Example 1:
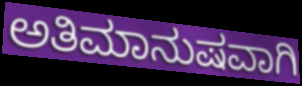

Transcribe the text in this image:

ಅತಿಮಾನುಷವಾಗಿ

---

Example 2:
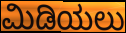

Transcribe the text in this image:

ಮಿಡಿಯಲು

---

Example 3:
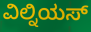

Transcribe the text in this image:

ವಿಲ್ನಿಯಸ್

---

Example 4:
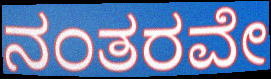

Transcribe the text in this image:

ನಂತರವೇ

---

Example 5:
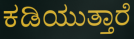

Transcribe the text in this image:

ಕಡಿಯುತ್ತಾರೆ